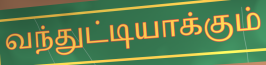
வந்துட்டியாக்கும்